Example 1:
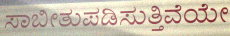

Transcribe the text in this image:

ಸಾಬೀತುಪಡಿಸುತ್ತಿವೆಯೇ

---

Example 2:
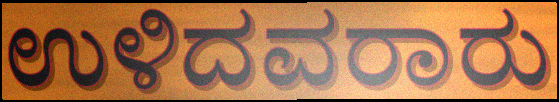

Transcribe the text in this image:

ಉಳಿದವರಾರು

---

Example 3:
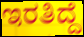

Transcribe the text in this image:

ಇರತಿದ್ದೆ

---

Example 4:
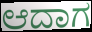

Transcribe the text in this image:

ಆದಾಗ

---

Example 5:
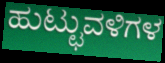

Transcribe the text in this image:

ಹುಟ್ಟುವಳಿಗಳ